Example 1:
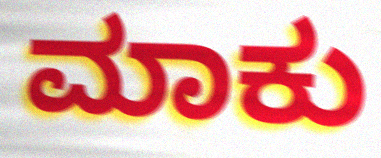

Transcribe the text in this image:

ಮಾಕು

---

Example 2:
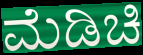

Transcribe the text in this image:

ಮೆಡಿಚಿ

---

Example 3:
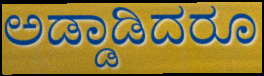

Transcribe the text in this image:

ಅಡ್ಡಾಡಿದರೂ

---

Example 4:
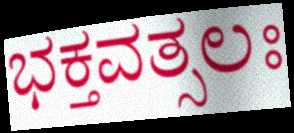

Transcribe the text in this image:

ಭಕ್ತವತ್ಸಲಃ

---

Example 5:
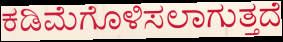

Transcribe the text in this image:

ಕಡಿಮೆಗೊಳಿಸಲಾಗುತ್ತದೆ